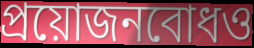
প্রয়োজনবোধও